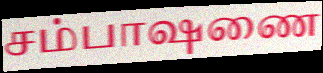
சம்பாஷணை